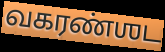
வகரண்ஶட